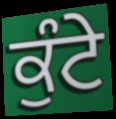
ਕੁੰਟੇ